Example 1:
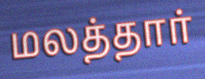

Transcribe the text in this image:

மலத்தார்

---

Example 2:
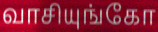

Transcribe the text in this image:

வாசியுங்கோ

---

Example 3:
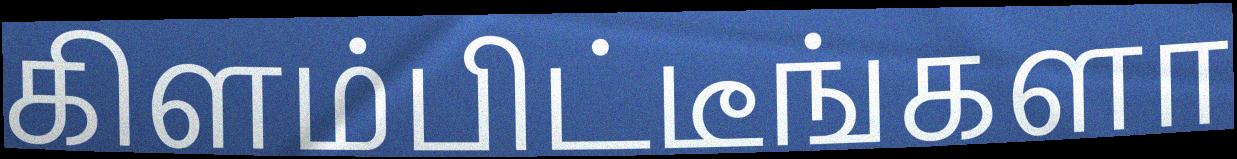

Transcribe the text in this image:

கிளம்பிட்டீங்களா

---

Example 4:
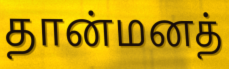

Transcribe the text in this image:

தான்மனத்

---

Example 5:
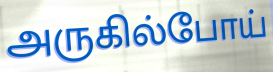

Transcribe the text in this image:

அருகில்போய்